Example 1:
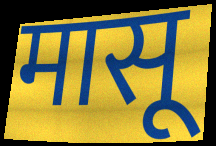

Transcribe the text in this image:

मासू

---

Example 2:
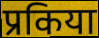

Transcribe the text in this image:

प्रकिया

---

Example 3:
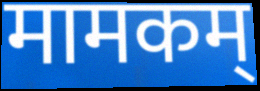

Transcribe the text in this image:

मामकम्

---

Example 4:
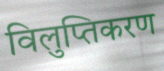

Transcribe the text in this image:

विलुप्तिकरण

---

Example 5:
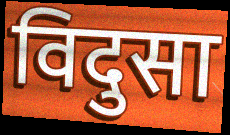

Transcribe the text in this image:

विदुसा